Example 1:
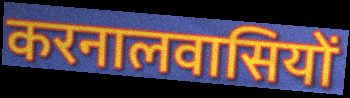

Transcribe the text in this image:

करनालवासियों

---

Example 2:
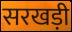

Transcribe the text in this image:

सरखड़ी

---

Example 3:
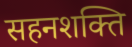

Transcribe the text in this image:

सहनशक्ति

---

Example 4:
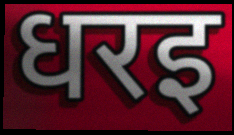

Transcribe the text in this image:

धरइ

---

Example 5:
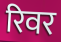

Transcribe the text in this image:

रिवर